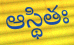
ఆస్థితః